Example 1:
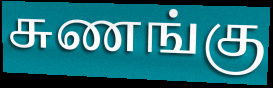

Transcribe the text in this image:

சுணங்கு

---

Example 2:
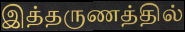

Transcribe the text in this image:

இத்தருணத்தில்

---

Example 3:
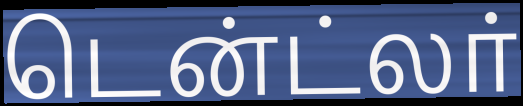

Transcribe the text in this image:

டென்ட்லர்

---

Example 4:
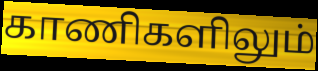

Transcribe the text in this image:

காணிகளிலும்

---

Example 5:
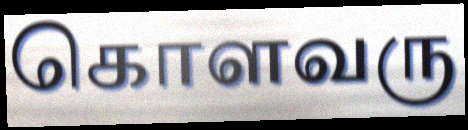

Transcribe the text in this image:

கொளவரு